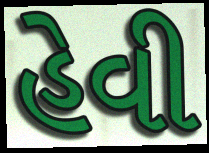
હેવી